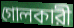
গোলকারী